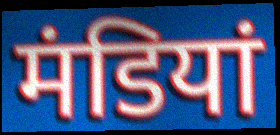
मंडियां